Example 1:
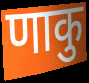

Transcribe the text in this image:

णाकु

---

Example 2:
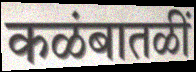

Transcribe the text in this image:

कळंबातळीं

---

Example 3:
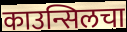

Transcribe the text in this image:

काउन्सिलचा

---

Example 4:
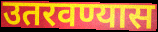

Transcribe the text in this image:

उतरवण्यास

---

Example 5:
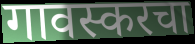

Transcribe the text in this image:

गावस्करचा